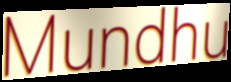
Mundhu